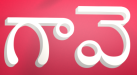
గావె